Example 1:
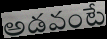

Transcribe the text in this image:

అడవంటే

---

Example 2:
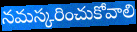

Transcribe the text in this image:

నమస్కరించుకోవాలి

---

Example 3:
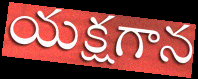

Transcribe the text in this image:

యక్షగాన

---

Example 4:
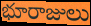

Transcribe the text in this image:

భూరాజులు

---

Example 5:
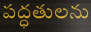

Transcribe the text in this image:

పద్ధతులను